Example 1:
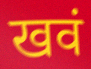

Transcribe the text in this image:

खवं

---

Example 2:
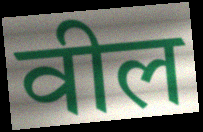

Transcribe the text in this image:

वील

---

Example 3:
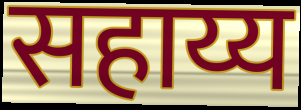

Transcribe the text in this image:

सहाय्य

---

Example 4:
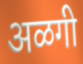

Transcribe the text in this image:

अळगी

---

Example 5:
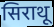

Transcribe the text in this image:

सिराथू